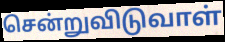
சென்றுவிடுவாள்